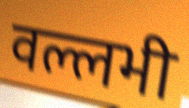
वल्लभी